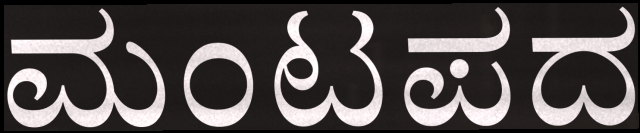
ಮಂಟಪದ